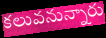
కలువనున్నారు